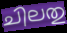
ചിലതു